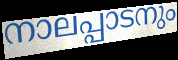
നാലപ്പാടനും